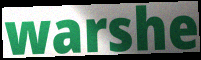
warshe